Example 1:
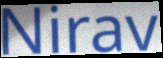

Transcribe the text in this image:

Nirav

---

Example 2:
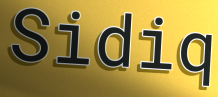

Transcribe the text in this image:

Sidiq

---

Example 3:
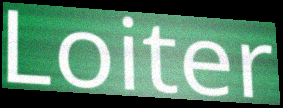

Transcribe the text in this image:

Loiter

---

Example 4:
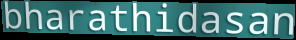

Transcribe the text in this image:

bharathidasan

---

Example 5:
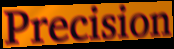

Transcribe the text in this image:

Precision